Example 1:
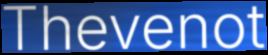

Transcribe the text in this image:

Thevenot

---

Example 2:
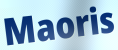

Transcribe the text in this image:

Maoris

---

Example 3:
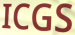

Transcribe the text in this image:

ICGS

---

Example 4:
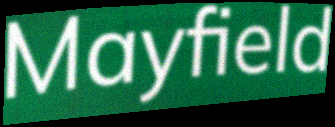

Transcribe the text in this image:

Mayfield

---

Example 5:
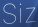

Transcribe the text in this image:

Siz